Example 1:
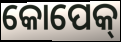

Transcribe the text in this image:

କୋପେକ୍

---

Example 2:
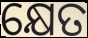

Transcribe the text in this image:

କ୍ଷେତ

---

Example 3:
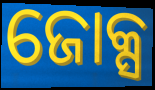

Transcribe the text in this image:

ଜୋକ୍ସ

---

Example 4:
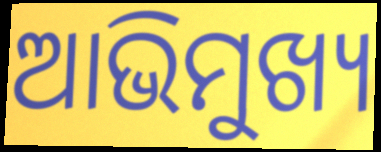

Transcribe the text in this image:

ଆଭିମୁଖ୍ୟ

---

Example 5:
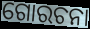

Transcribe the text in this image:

ଗୋରଚନା